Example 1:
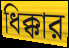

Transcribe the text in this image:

ধিক্কার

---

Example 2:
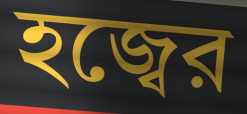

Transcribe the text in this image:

হজ্বের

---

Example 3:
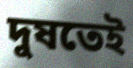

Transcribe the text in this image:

দুষতেই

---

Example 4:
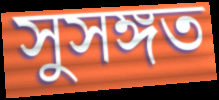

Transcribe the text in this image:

সুসঙ্গত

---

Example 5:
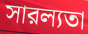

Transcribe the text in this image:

সারল্যতা